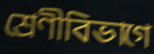
শ্রেণীবিভাগে